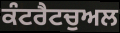
ਕੰਟਰੈਟਚੁਅਲ